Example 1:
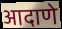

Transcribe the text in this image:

आदाणे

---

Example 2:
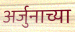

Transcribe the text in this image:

अर्जुनाच्या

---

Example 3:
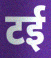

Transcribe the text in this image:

टई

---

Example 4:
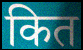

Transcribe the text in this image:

कित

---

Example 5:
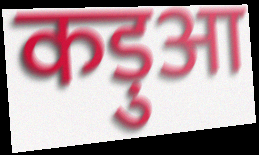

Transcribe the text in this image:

कड़ुआ